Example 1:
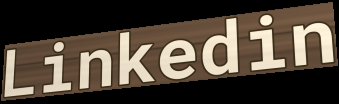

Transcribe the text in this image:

Linkedin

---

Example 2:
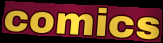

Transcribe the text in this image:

comics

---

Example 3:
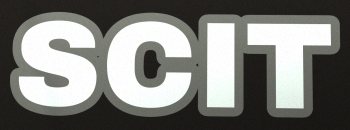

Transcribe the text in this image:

SCIT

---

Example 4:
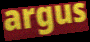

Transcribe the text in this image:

argus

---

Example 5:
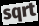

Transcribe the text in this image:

sqrt